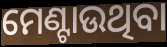
ମେଣ୍ଟାଉଥିବା